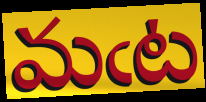
మఁట